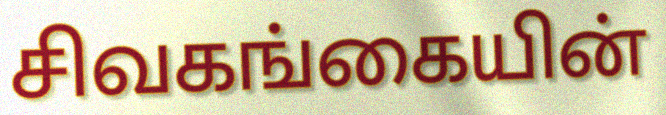
சிவகங்கையின்